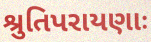
શ્રુતિપરાયણાઃ